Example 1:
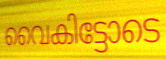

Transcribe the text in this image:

വൈകിട്ടോടെ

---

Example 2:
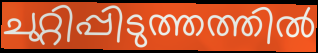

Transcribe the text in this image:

ചുറ്റിപ്പിടുത്തത്തിൽ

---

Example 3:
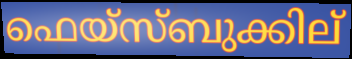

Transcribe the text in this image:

ഫെയ്സ്ബുക്കില്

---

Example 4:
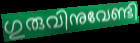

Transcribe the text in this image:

ഗുരുവിനുവേണ്ടി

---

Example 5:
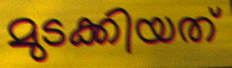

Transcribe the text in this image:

മുടക്കിയത്